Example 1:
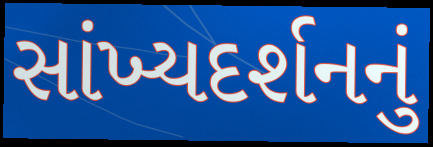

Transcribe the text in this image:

સાંખ્યદર્શનનું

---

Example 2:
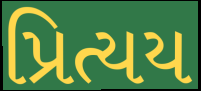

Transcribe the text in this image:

પ્રિત્યય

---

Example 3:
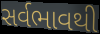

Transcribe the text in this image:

સર્વભાવથી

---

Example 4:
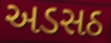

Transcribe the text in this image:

અડસઠ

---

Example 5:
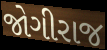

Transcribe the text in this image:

જોગીરાજ